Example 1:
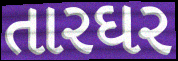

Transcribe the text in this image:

તારઘર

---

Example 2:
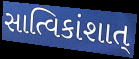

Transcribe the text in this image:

સાત્વિકાંશાત્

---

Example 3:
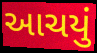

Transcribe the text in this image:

આચયું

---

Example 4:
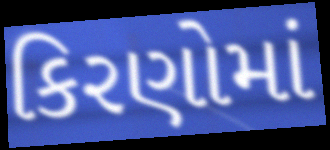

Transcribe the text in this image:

કિરણોમાં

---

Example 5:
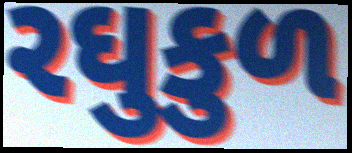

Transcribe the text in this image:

રઘુકુળ